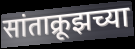
सांताक्रूझच्या